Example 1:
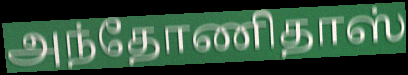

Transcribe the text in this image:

அந்தோணிதாஸ்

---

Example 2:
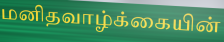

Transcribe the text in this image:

மனிதவாழ்க்கையின்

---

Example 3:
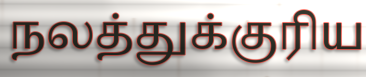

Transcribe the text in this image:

நலத்துக்குரிய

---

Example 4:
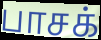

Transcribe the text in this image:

பாசக்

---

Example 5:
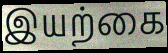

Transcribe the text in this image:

இயற்கை